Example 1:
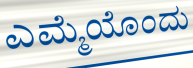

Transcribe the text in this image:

ಎಮ್ಮೆಯೊಂದು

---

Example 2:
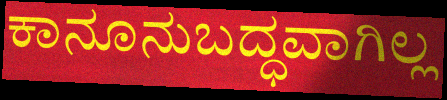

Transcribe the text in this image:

ಕಾನೂನುಬದ್ಧವಾಗಿಲ್ಲ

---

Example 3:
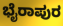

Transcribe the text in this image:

ಭೈರಾಪುರ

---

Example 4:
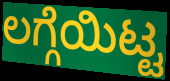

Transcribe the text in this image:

ಲಗ್ಗೆಯಿಟ್ಟ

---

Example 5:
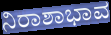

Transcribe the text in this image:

ನಿರಾಶಾಭಾವ